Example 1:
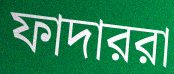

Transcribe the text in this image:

ফাদাররা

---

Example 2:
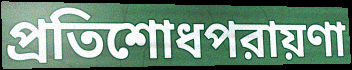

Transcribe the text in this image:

প্রতিশোধপরায়ণা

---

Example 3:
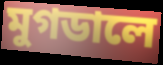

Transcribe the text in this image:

মুগডালে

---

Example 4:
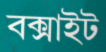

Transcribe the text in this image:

বক্সাইট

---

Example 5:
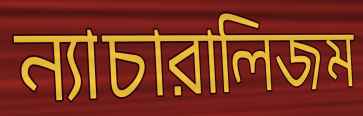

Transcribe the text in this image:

ন্যাচারালিজম